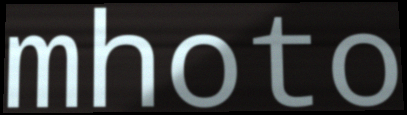
mhoto